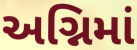
અગ્નિમાં